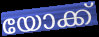
യോക്ക്